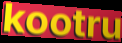
kootru